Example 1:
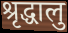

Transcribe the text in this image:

श्रृद्धालु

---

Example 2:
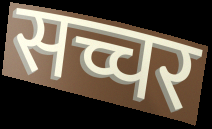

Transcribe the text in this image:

सच्चर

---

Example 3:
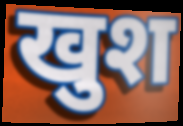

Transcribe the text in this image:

खुश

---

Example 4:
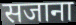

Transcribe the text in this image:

सजाना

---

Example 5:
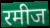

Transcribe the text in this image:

रमीज